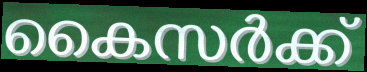
കൈസർക്ക്